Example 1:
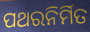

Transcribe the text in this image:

ପଥରନିର୍ମିତ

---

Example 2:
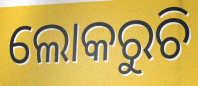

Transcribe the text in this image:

ଲୋକରୁଚି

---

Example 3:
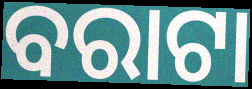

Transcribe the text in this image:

ବରାଟା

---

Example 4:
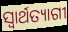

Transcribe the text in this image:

ସ୍ୱାର୍ଥତ୍ୟାଗୀ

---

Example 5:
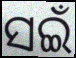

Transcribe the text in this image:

ସଇଁ